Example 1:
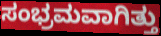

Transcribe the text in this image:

ಸಂಭ್ರಮವಾಗಿತ್ತು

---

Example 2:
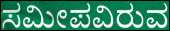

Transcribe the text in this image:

ಸಮೀಪವಿರುವ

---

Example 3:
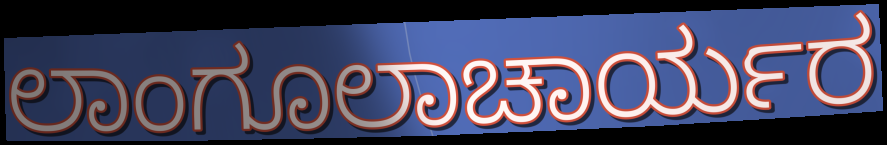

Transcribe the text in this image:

ಲಾಂಗೂಲಾಚಾರ್ಯರ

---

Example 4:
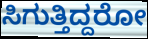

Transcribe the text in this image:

ಸಿಗುತ್ತಿದ್ದರೋ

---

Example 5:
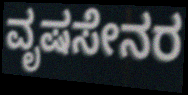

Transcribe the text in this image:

ವೃಷಸೇನರ